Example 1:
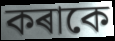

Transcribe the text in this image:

কৰাকে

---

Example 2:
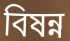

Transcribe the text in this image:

বিষন্ন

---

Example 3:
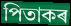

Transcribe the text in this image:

পিতাকৰ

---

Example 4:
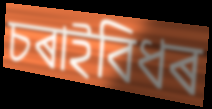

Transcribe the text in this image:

চৰাইবিধৰ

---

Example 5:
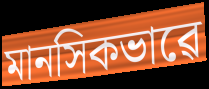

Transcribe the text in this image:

মানসিকভাৱে